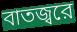
বাতজ্বরে